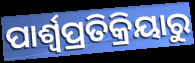
ପାର୍ଶ୍ୱପ୍ରତିକ୍ରିୟାରୁ